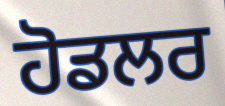
ਹੋਡਲਰ